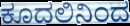
ಕೂದಲಿನಿಂದ